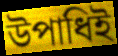
উপাধিই